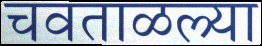
चवताळल्या